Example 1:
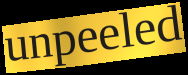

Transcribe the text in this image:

unpeeled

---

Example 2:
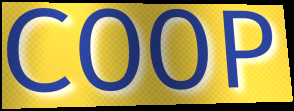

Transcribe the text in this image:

COOP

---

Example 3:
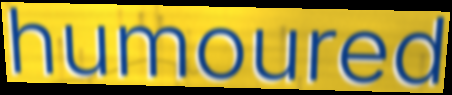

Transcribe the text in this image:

humoured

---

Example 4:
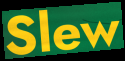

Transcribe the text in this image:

Slew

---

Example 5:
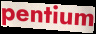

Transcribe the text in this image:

pentium